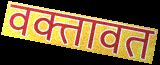
वक्तावत